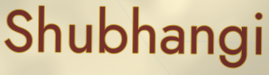
Shubhangi